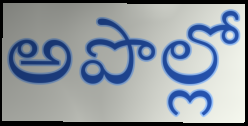
అపొల్లో